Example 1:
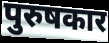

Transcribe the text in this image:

पुरुषकार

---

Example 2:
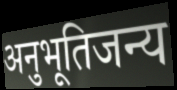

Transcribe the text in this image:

अनुभूतिजन्य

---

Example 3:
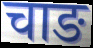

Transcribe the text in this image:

चाङ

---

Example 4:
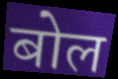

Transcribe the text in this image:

बोल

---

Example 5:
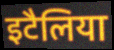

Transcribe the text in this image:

इटैलिया